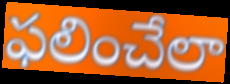
ఫలించేలా